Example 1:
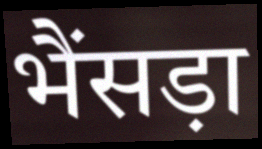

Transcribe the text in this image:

भैंसड़ा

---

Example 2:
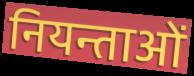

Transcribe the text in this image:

नियन्ताओं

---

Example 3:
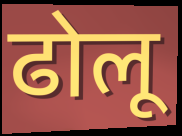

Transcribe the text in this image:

ढोलू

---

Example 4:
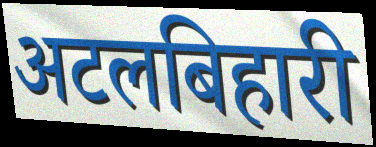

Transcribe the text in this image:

अटलबिहारी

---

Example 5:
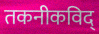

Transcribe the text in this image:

तकनीकविद्